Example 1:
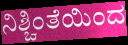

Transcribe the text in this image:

ನಿಶ್ಚಿಂತೆಯಿಂದ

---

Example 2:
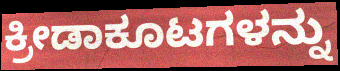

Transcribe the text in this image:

ಕ್ರೀಡಾಕೂಟಗಳನ್ನು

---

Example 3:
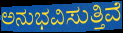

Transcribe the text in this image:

ಅನುಭವಿಸುತ್ತಿವೆ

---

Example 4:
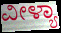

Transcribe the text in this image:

ವೀಳ್ಯಾ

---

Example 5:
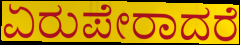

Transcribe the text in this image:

ಏರುಪೇರಾದರೆ